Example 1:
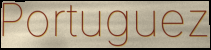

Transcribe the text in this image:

Portuguez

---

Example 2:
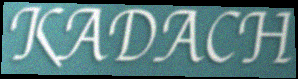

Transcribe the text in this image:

KADACH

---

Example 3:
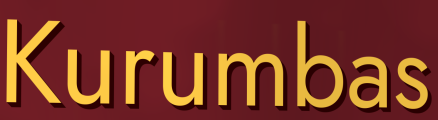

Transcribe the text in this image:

Kurumbas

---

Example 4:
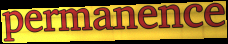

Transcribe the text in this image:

permanence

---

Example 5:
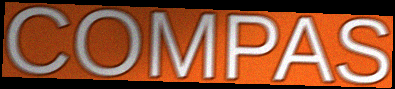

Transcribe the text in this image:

COMPAS